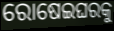
ରୋଷେଇଘରକୁ